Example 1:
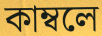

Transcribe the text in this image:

কাম্বলে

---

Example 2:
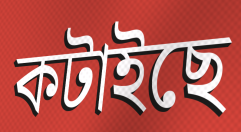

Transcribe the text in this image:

কটাইছে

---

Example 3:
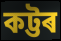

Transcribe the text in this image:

কট্টৰ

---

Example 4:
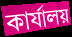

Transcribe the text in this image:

কাৰ্যালয়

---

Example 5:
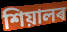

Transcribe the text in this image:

শিয়ালৰ